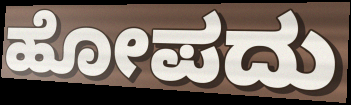
ಹೋಪದು